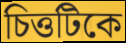
চিত্তটিকে